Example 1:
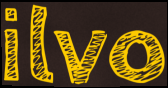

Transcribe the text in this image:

ilvo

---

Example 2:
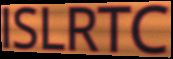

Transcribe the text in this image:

ISLRTC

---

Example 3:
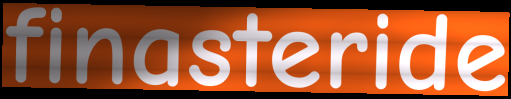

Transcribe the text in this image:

finasteride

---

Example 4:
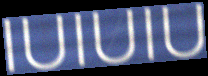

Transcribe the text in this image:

IUIUIU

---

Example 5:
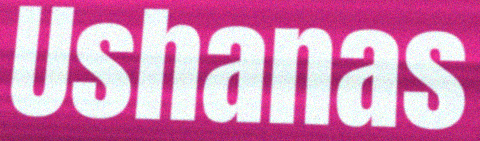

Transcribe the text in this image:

Ushanas